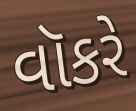
વૉકરે